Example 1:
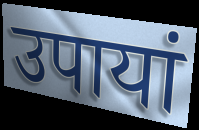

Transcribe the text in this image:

उपायां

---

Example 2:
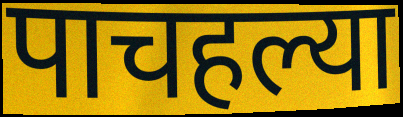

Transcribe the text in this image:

पाचहल्या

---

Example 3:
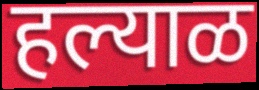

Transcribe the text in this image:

हल्याळ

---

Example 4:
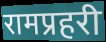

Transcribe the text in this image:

रामप्रहरी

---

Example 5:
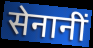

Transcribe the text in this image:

सेनानीं